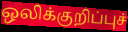
ஒலிக்குறிப்புச்